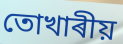
তোখাৰীয়